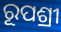
ରୂପଶ୍ରୀ